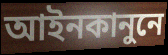
আইনকানুনে